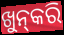
ଖୁନ୍‍କରି